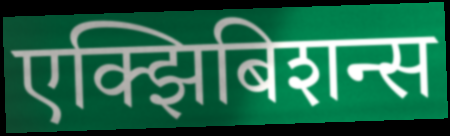
एक्झिबिशन्स